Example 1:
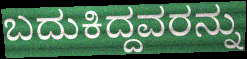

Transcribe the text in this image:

ಬದುಕಿದ್ದವರನ್ನು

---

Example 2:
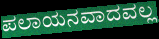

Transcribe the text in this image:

ಪಲಾಯನವಾದವಲ್ಲ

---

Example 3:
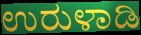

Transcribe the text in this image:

ಉರುಳಾಡಿ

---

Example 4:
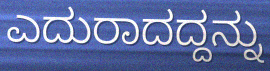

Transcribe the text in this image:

ಎದುರಾದದ್ದನ್ನು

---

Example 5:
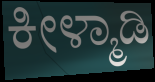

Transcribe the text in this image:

ಕೀಳ್ಮಾಡಿ